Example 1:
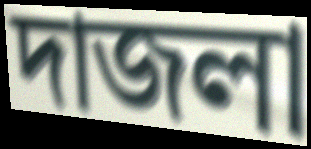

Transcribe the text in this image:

দাজলা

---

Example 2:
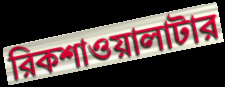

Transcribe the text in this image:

রিকশাওয়ালাটার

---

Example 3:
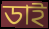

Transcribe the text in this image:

ডাই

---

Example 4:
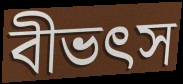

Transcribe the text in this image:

বীভৎস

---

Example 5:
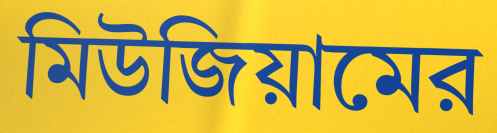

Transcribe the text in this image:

মিউজিয়ামের